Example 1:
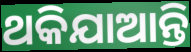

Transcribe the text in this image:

ଥକିଯାଆନ୍ତି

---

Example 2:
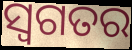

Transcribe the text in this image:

ସ୍ୱଗତର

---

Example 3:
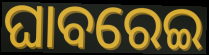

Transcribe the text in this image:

ଘାବରେଇ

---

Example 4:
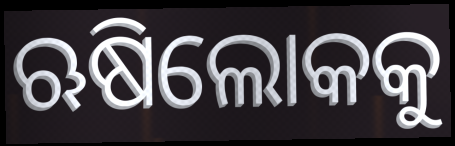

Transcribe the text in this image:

ଋଷିଲୋକକୁ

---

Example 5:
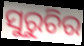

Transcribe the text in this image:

ସୁରୁଚିର